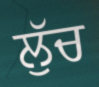
ਲੁੱਚ